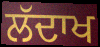
ਲੱਦਾਖ